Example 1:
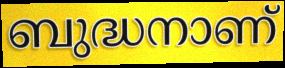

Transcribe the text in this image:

ബുദ്ധനാണ്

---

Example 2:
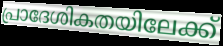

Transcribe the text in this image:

പ്രാദേശികതയിലേക്ക്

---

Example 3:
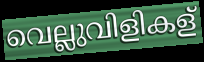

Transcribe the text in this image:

വെല്ലുവിളികള്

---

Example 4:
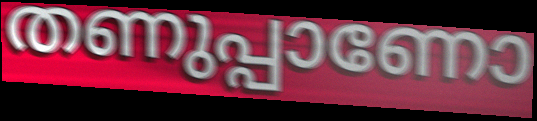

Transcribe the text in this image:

തണുപ്പാണോ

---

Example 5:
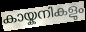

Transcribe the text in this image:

കായ്കനികളും